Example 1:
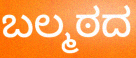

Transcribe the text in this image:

ಬಲ್ಮಠದ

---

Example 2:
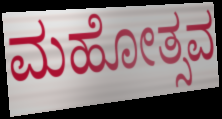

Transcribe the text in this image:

ಮಹೋತ್ಸವ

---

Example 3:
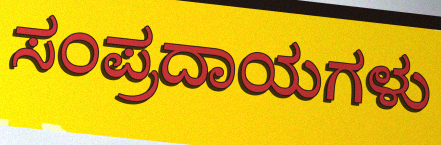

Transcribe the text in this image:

ಸಂಪ್ರದಾಯಗಳು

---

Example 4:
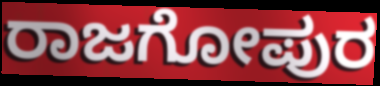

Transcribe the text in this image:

ರಾಜಗೋಪುರ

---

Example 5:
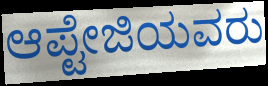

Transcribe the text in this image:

ಆಪ್ಟೇಜಿಯವರು